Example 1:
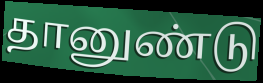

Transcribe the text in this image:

தானுண்டு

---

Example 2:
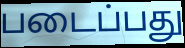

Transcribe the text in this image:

படைப்பது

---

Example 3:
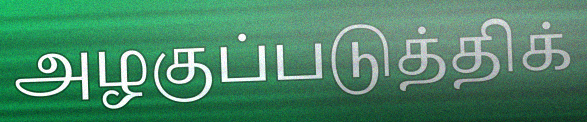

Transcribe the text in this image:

அழகுப்படுத்திக்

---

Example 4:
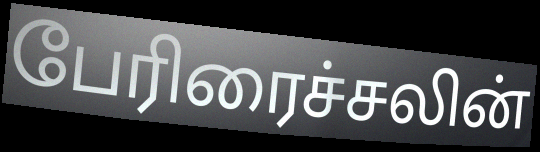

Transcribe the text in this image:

பேரிரைச்சலின்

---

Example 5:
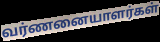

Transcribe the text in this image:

வர்ணனையாளர்கள்